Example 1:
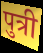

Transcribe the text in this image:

पुत्री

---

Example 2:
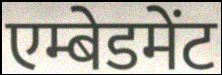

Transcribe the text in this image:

एम्बेडमेंट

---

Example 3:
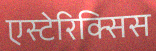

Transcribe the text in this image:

एस्टेरिक्सिस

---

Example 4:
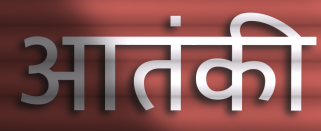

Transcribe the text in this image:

आतंकी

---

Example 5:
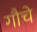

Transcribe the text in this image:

गौचे